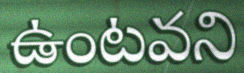
ఉంటవని